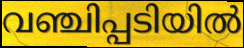
വഞ്ചിപ്പടിയിൽ